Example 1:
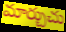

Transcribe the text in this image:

మార్చుచు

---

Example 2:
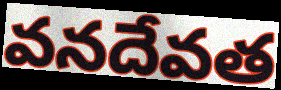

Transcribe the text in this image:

వనదేవత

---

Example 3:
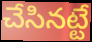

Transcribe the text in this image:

చేసినట్టే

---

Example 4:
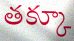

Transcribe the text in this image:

తక్కూ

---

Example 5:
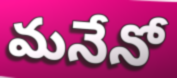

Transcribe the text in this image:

మనేనో